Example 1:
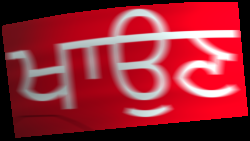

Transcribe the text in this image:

ਖਾਉਣ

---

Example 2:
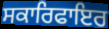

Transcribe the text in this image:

ਸਕਾਰਿਫਾਇਰ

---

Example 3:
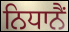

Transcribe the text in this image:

ਨਿਧਾਨੈਂ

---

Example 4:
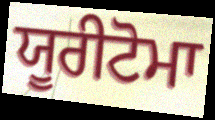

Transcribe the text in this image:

ਯੂਰੀਟੋਮਾ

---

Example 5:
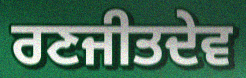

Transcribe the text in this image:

ਰਣਜੀਤਦੇਵ